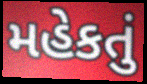
મહેકતું